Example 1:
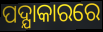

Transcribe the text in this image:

ପଦ୍ଯାକାରରେ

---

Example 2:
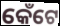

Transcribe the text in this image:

କେଁଟେ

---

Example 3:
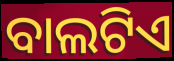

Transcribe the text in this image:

ବାଲଟିଏ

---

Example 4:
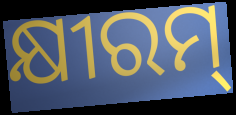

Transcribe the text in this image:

କ୍ଷୀରମ୍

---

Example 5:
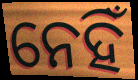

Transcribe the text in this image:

ନେହିଁ